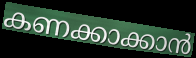
കണക്കാക്കാൻ